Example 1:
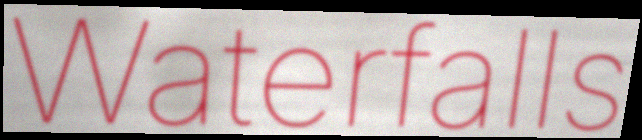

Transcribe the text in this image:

Waterfalls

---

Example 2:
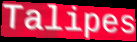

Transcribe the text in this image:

Talipes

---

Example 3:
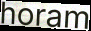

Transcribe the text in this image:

horam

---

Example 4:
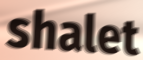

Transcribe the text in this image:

shalet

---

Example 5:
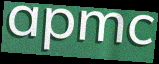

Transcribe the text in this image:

apmc